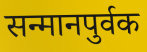
सन्मानपुर्वक